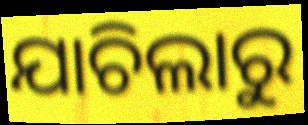
ଯାଚିଲାରୁ